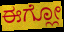
ಈಗ್ಲೋ